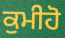
ਕੁਮੀਹੋ